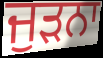
ਜੁੜਨਾ